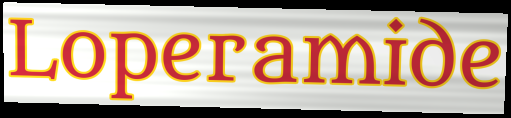
Loperamide